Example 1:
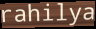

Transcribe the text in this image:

rahilya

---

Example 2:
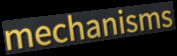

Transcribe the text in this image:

mechanisms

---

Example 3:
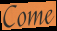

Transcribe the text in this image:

Come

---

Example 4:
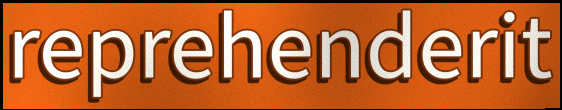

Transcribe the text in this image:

reprehenderit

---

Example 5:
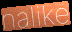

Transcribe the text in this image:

nalike